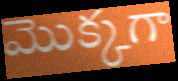
మొక్కగా